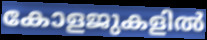
കോളജുകളിൽ